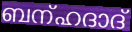
ബന്ഹദാദ്